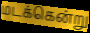
மடக்கென்று